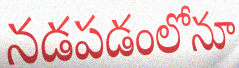
నడపడంలోనూ